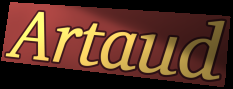
Artaud